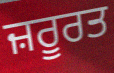
ਜ਼ਰੂਰਤ